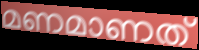
മണമാണത്